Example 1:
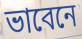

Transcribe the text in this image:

ভাবেনে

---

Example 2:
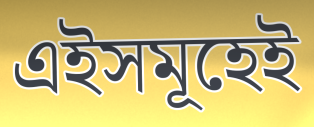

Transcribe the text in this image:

এইসমূহেই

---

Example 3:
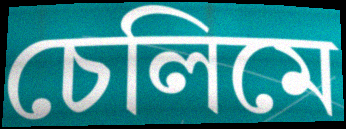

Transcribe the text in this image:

চেলিমে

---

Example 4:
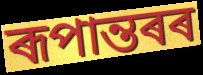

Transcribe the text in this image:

ৰূপান্তৰৰ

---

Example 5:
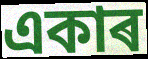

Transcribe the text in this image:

একাৰ